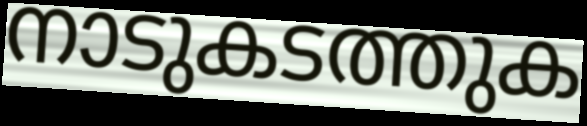
നാടുകടത്തുക